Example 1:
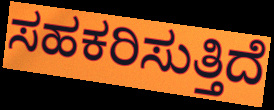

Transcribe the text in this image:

ಸಹಕರಿಸುತ್ತಿದೆ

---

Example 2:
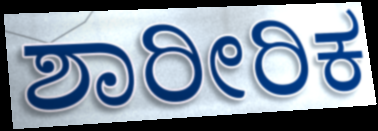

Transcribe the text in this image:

ಶಾರೀರಿಕ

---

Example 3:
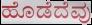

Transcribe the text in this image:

ಹೊಡೆದೆವು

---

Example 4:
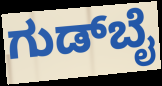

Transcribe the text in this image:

ಗುಡ್‌ಬೈ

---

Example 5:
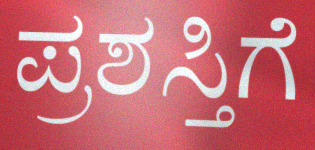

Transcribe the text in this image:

ಪ್ರಶಸ್ತಿಗೆ